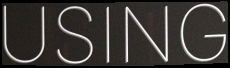
USING